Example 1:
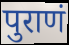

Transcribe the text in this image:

पुराणं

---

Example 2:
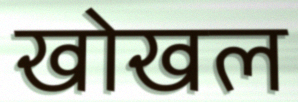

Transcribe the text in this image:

खोखल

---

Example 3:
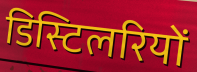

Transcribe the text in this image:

डिस्टिलरियों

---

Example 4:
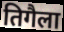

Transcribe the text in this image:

तिगैला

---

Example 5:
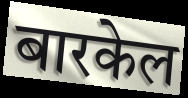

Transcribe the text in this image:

बारकेल